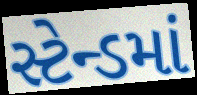
સ્ટેન્ડમાં